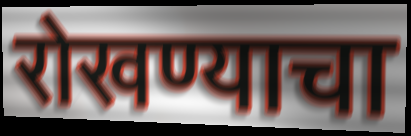
रोखण्याचा